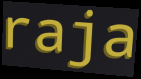
raja